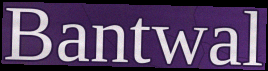
Bantwal